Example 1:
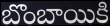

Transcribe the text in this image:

బొంబాయికి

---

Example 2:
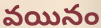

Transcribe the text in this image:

వయినం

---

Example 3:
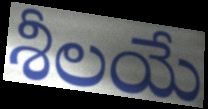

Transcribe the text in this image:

శీలయే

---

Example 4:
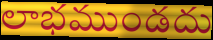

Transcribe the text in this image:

లాభముండదు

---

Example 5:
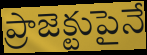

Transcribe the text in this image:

ప్రాజెక్టుపైనే